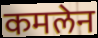
कमलेन